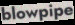
blowpipe